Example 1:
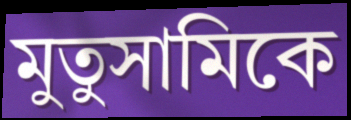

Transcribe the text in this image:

মুতুসামিকে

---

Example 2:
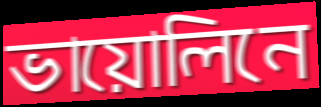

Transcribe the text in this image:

ভায়োলিনে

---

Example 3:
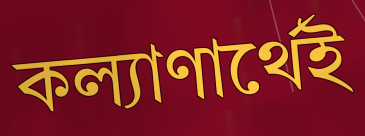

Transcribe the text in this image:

কল্যাণার্থেই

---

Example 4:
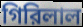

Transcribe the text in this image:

গিরিলাল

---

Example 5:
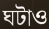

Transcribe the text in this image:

ঘটাও